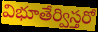
విభూతేర్విస్తరో